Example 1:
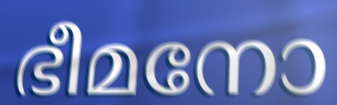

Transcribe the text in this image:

ഭീമനോ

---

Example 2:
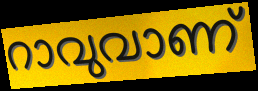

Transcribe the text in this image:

റാവുവാണ്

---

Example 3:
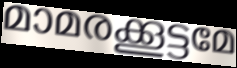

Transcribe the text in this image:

മാമരക്കൂട്ടമേ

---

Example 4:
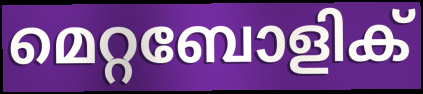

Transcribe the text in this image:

മെറ്റബോളിക്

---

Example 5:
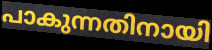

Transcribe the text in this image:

പാകുന്നതിനായി